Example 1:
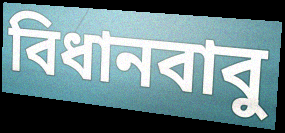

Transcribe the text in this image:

বিধানবাবু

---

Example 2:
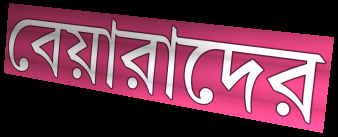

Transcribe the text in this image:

বেয়ারাদের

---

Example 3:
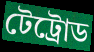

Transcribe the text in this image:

টেট্রোড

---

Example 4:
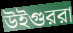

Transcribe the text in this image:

উইগুররা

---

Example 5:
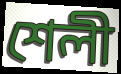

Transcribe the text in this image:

শেলী